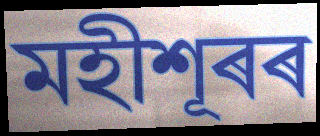
মহীশূৰৰ